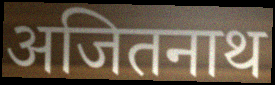
अजितनाथ